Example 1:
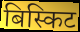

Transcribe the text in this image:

बिस्किट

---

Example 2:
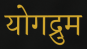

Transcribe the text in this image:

योगद्रुम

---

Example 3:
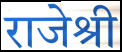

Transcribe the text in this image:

राजेश्री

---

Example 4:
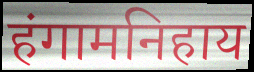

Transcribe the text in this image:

हंगामनिहाय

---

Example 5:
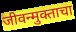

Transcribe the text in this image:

जीवन्मुक्ताचा